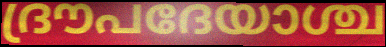
ദ്രൗപദേയാശ്ച